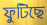
ফুটিছে